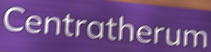
Centratherum